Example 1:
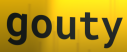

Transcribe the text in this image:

gouty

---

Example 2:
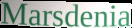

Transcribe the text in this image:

Marsdenia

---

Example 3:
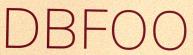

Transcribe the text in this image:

DBFOO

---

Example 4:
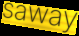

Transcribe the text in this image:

saway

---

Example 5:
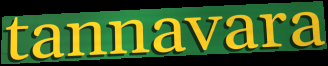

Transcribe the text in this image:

tannavara